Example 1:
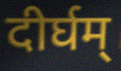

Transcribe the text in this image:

दीर्घम्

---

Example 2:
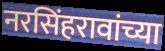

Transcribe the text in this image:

नरसिंहरावांच्या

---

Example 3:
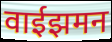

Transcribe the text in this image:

वाईझमन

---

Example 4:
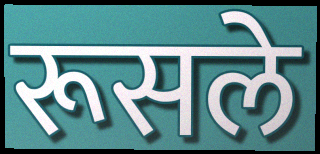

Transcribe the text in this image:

रूसले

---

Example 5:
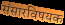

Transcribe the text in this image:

संसारविषयक